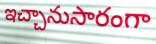
ఇచ్చానుసారంగా